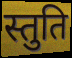
स्तुति